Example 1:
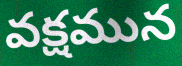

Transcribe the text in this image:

వక్షమున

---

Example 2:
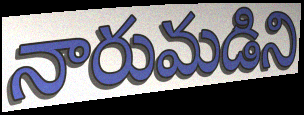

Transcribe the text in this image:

నారుమడిని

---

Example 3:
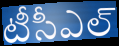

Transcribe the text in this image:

టీసీఎల్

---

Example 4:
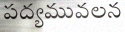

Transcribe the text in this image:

పద్యమువలన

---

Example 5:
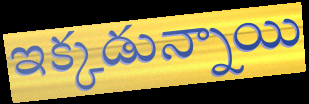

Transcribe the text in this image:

ఇక్కడున్నాయి